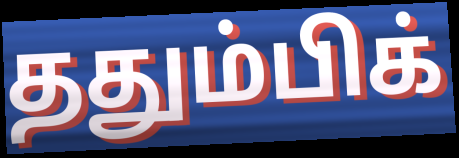
ததும்பிக்